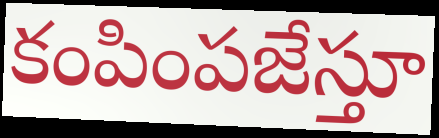
కంపింపజేస్తూ